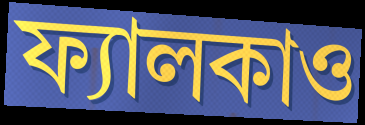
ফ্যালকাও